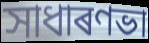
সাধাৰণভা